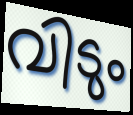
വിടും